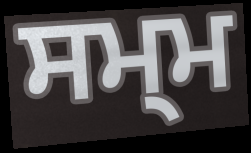
ਸਮ੍ਮ